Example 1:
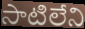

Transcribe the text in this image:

సాటిలేని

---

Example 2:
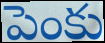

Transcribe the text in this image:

పెంకు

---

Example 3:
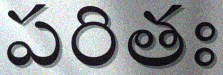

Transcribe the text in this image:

పరితః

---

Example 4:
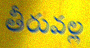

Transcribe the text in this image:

తీరువల్ల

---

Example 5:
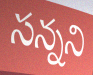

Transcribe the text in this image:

సన్నని